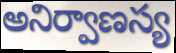
అనిర్వాణస్య